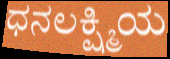
ಧನಲಕ್ಷ್ಮಿಯ